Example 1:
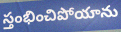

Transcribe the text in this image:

స్తంభించిపోయాను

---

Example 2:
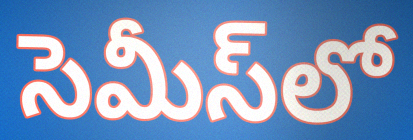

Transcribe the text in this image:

సెమీస్‌లో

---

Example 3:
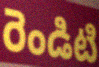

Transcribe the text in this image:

రెండిటి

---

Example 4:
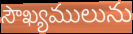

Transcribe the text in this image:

సౌఖ్యములును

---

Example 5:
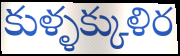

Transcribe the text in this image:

కుళ్ళక్కుళిర